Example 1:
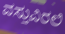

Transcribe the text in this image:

ವಸ್ತುವಿರಲಿ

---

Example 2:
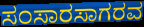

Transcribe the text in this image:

ಸಂಸಾರಸಾಗರವ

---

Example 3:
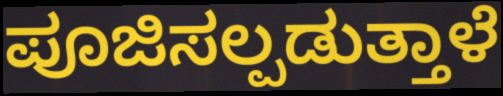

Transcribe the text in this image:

ಪೂಜಿಸಲ್ಪಡುತ್ತಾಳೆ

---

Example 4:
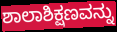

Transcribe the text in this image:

ಶಾಲಾಶಿಕ್ಷಣವನ್ನು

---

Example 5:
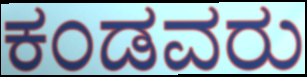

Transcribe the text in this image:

ಕಂಡವರು